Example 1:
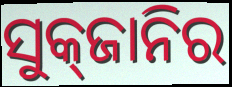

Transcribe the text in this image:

ସୁକ୍‌ଜାନିର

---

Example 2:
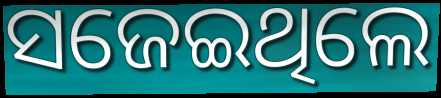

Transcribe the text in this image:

ସଜେଇଥିଲେ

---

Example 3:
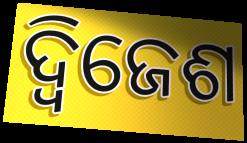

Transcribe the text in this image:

ଦ୍ୱିଜେଶ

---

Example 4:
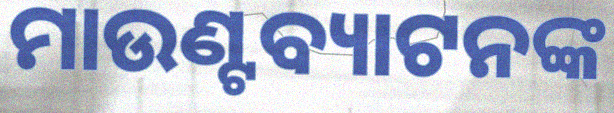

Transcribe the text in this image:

ମାଉଣ୍ଟବ୍ୟାଟନଙ୍କ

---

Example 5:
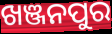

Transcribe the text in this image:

ଖଞ୍ଜନପୁର